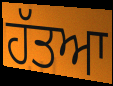
ਹੱਤਆ